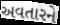
અવતારને